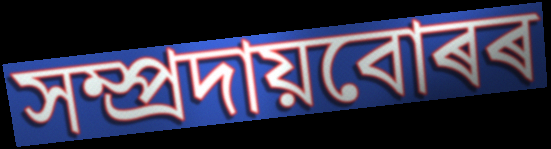
সম্প্ৰদায়বোৰৰ